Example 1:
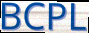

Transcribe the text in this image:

BCPL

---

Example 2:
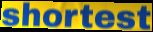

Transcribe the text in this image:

shortest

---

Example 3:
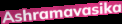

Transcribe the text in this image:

Ashramavasika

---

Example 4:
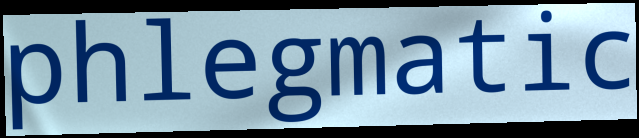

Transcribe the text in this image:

phlegmatic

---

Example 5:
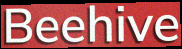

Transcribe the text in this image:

Beehive